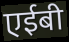
एईबी